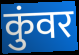
कुंवर